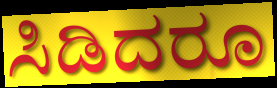
ಸಿಡಿದರೂ